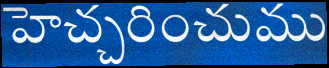
హెచ్చరించుము